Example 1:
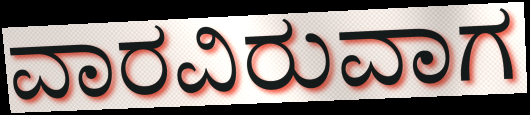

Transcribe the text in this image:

ವಾರವಿರುವಾಗ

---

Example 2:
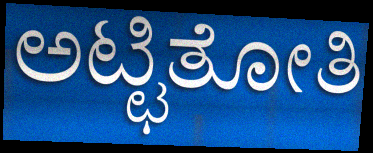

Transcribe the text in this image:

ಅಟ್ಟಿತೋತಿ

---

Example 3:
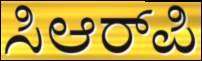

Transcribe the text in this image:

ಸಿಆರ್‌ಪಿ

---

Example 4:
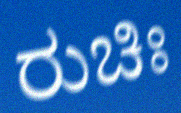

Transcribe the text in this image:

ರುಚಿಃ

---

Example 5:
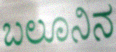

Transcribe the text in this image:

ಬಲೂನಿನ